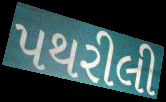
પથરીલી